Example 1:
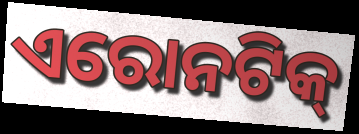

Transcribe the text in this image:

ଏରୋନଟିକ୍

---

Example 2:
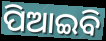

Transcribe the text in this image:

ପିଆଇବି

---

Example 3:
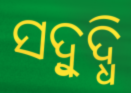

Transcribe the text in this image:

ସଦ୍ବୁଦ୍ଧି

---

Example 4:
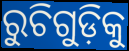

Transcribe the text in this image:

ରୁଚିଗୁଡ଼ିକୁ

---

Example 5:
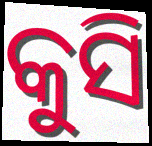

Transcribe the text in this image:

କୁସି